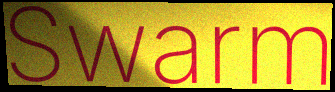
Swarm